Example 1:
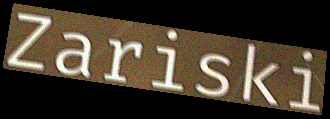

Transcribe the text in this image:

Zariski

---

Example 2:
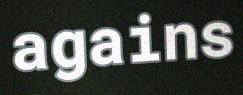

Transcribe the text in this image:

agains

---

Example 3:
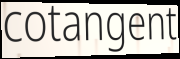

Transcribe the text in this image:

cotangent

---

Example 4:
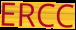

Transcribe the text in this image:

ERCC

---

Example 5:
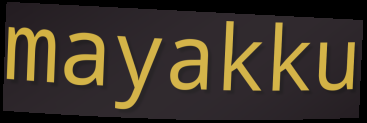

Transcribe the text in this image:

mayakku